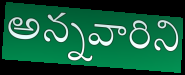
అన్నవారిని